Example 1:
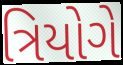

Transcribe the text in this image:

ત્રિયોગે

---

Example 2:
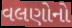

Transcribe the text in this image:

વલણોનો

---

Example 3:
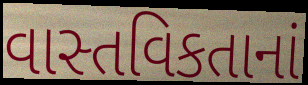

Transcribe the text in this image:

વાસ્તવિકતાનાં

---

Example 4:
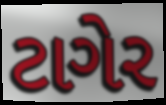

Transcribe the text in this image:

ટાગેર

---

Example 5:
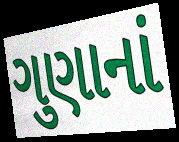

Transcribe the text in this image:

ગુણાનાં